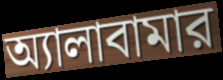
অ্যালাবামার